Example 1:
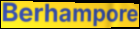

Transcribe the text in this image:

Berhampore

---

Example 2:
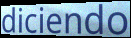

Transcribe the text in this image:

diciendo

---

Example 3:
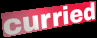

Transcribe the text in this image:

curried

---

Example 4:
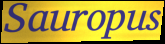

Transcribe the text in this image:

Sauropus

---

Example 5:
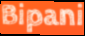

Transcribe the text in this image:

Bipani